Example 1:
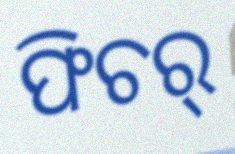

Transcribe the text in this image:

ଫିଚର୍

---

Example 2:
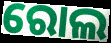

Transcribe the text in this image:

ରୋଲ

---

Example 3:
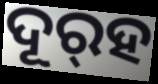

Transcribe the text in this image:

ଦୂର୍‌ହ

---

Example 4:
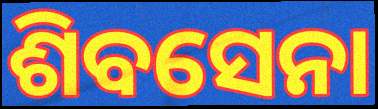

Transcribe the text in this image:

ଶିବସେନା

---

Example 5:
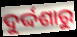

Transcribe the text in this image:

ଦୁର୍ଦ୍ଦଶାରୁ